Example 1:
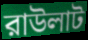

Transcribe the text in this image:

রাউলাট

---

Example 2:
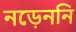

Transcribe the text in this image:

নড়েননি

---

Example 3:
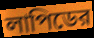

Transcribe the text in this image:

লাপিডের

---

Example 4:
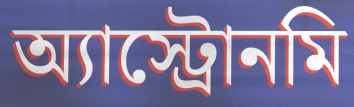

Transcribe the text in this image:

অ্যাস্ট্রোনমি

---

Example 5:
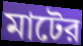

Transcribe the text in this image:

মাটের